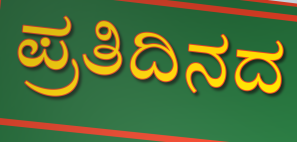
ಪ್ರತಿದಿನದ